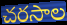
చరసాల